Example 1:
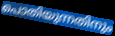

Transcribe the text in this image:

പൊതിയുന്നതിനും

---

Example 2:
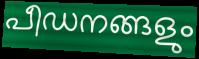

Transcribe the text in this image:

പീഡനങ്ങളും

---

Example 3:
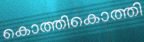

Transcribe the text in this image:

കൊത്തികൊത്തി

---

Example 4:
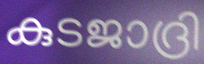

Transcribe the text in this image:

കുടജാദ്രി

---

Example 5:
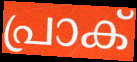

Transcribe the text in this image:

പ്രാക്